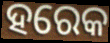
ହରେକ